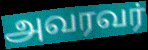
அவரவர்